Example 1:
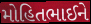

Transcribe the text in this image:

મોહિતભાઈને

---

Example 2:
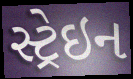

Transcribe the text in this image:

સ્ટ્રેઇન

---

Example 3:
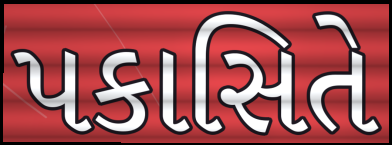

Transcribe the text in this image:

પકાસિતે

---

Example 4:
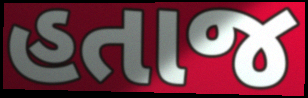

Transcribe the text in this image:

હતાજ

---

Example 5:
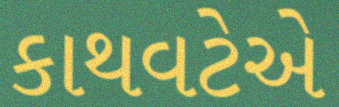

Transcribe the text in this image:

કાથવટેએ